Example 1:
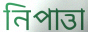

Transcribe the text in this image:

নিপাত্তা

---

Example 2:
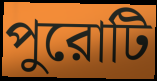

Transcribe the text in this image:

পুরোটি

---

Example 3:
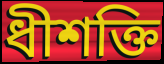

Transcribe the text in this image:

ধীশক্তি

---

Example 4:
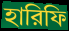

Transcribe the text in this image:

হারিফি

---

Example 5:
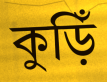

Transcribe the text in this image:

কুড়িঁ